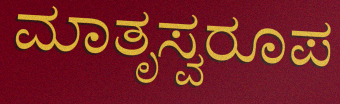
ಮಾತೃಸ್ವರೂಪ